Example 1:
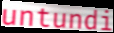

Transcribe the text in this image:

untundi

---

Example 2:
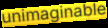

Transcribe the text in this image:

unimaginable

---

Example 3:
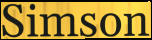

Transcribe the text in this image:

Simson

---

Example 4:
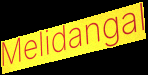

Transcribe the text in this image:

Melidangal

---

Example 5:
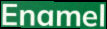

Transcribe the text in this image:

Enamel